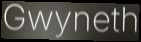
Gwyneth